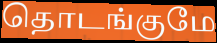
தொடங்குமே